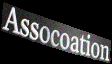
Assocoation